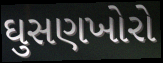
ઘુસણખોરો